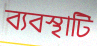
ব্যবস্থাটি